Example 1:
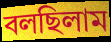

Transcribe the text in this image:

বলছিলাম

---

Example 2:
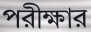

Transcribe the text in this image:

পরীক্ষার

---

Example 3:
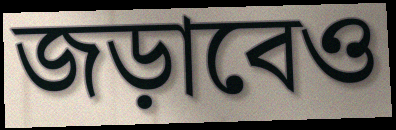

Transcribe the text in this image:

জড়াবেও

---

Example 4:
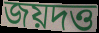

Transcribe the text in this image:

জয়দত্ত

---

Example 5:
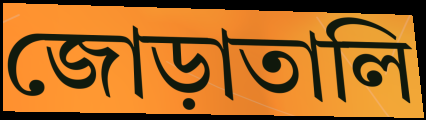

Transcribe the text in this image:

জোড়াতালি